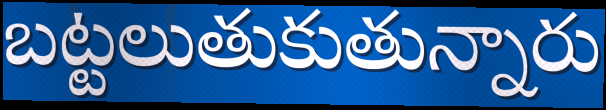
బట్టలుతుకుతున్నారు